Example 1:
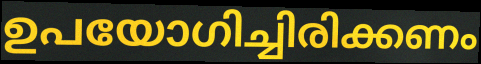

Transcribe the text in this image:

ഉപയോഗിച്ചിരിക്കണം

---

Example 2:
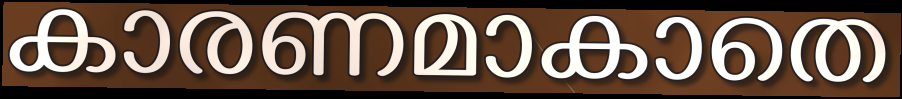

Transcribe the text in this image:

കാരണമാകാതെ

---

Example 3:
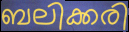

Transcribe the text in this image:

ബലിക്കരി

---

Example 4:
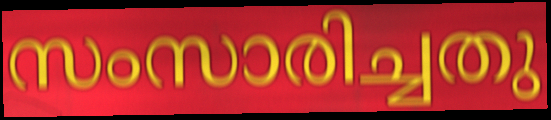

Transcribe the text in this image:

സംസാരിച്ചതു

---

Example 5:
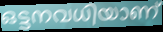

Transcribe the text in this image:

ഒട്ടനവധിയാണ്